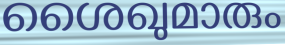
ശൈഖുമാരും